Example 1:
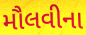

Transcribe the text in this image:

મૌલવીના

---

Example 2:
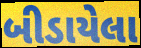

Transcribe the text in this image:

બીડાયેલા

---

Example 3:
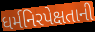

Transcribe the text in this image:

ધર્મનિરપેક્ષતાની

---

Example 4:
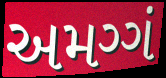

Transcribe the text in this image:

અમગ્ગં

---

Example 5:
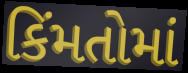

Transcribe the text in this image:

કિંમતોમાં